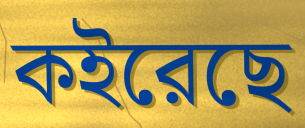
কইরেছে